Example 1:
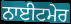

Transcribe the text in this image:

ਨਾਈਟਮੇਰ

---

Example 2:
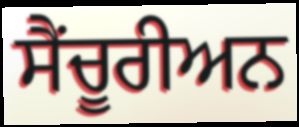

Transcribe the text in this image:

ਸੈਂਚੂਰੀਅਨ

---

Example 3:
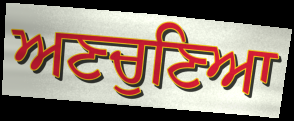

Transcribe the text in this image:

ਅਣਚੁਣਿਆ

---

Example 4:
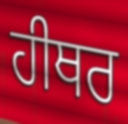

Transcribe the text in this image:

ਹੀਥਰ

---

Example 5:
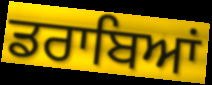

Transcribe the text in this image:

ਡਰਾਬਿਆਂ